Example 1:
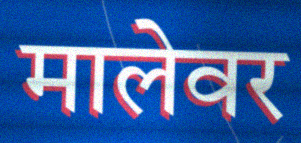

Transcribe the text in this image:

मालेवर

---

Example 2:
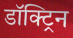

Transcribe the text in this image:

डॉक्ट्रिन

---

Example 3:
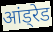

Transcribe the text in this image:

आंड्रेड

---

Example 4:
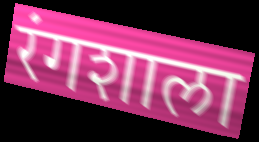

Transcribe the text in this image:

रंगशाला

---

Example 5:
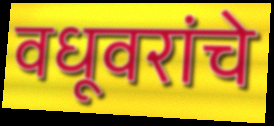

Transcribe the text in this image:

वधूवरांचे